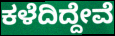
ಕಳೆದಿದ್ದೇವೆ